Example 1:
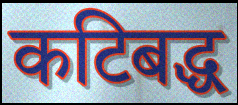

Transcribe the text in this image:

कटिबद्ध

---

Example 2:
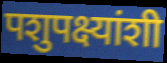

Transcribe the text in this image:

पशुपक्ष्यांशी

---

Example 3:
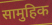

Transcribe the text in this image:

सामुहिक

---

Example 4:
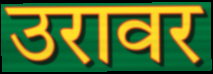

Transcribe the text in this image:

उरावर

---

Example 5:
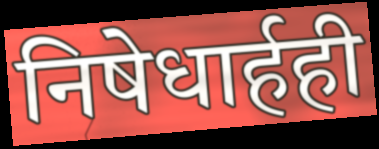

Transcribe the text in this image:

निषेधार्हही